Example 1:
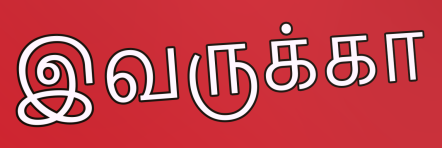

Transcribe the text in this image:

இவருக்கா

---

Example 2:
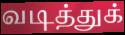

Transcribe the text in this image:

வடித்துக்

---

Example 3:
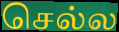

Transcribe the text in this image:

செல்ல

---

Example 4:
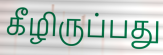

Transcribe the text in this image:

கீழிருப்பது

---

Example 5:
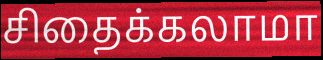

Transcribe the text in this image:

சிதைக்கலாமா